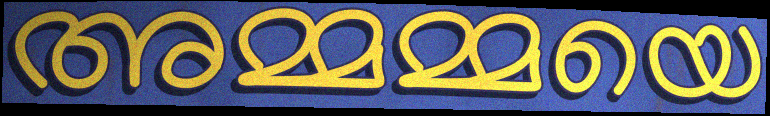
അമ്മമ്മയെ